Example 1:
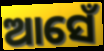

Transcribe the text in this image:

ଆସେଁ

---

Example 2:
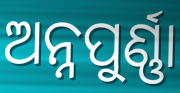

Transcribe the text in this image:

ଅନ୍ନପୁର୍ଣ୍ଣା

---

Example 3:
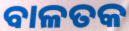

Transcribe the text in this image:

ବାଳତକ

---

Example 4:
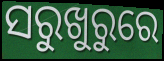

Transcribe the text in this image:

ସରୁଖୁରୁରେ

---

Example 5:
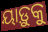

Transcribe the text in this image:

ୟାଡ଼ୁକୁ